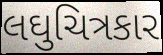
લઘુચિત્રકાર